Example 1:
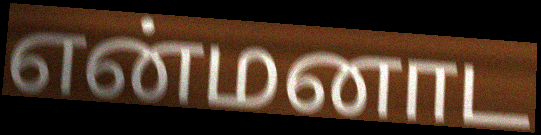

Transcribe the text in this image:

என்மனாட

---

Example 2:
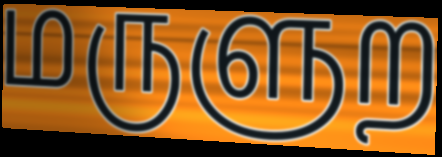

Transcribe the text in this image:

மருளுற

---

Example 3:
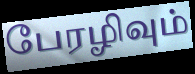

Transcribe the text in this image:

பேரழிவும்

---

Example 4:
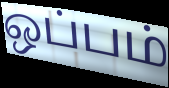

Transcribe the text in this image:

ஒப்பம்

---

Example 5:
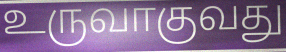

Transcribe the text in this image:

உருவாகுவது